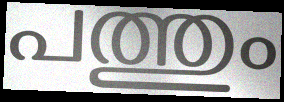
പത്തും